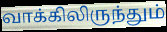
வாக்கிலிருந்தும்